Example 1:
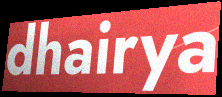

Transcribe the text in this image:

dhairya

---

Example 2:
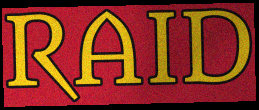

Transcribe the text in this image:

RAID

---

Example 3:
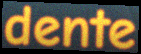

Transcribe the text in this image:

dente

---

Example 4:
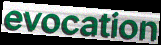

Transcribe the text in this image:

evocation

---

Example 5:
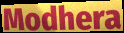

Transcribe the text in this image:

Modhera